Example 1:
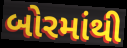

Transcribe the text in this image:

બોરમાંથી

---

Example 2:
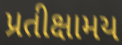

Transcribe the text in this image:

પ્રતીક્ષામય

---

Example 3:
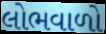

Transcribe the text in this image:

લોભવાળો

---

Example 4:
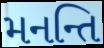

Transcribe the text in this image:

મનન્તિ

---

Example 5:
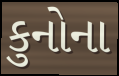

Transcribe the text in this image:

કુનોના